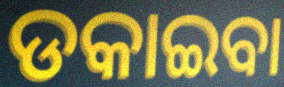
ଡକାଇବା